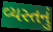
વ્યસ્તનું